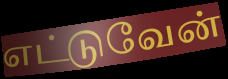
எட்டுவேன்